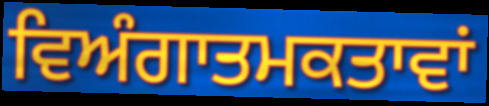
ਵਿਅੰਗਾਤਮਕਤਾਵਾਂ